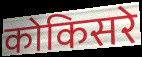
कोकिसरे